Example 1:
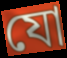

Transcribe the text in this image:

যো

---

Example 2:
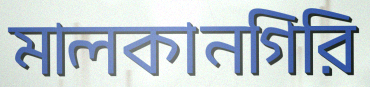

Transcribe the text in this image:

মালকানগিরি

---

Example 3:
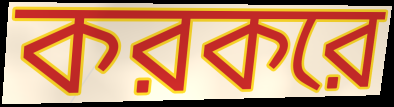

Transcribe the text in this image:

করকরে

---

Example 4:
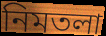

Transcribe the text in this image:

নিমতলা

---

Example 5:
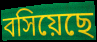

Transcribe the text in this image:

বসিয়েছে